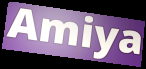
Amiya